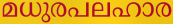
മധുരപലഹാര